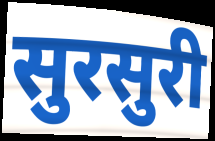
सुरसुरी